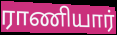
ராணியார்